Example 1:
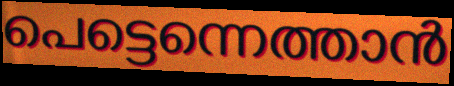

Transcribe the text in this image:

പെട്ടെന്നെത്താൻ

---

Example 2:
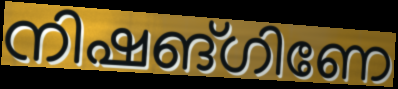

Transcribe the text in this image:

നിഷങ്ഗിണേ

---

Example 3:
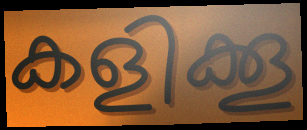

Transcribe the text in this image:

കളിക്കൂ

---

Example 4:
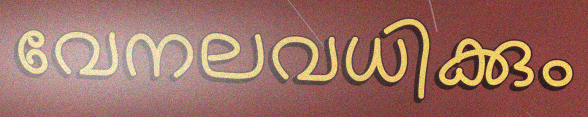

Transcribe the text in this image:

വേനലവധിക്കും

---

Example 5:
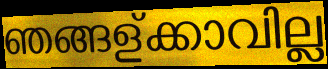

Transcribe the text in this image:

ഞങ്ങള്ക്കാവില്ല